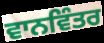
ਵਾਨਵਿੰਤਰ